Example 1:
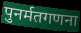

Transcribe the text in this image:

पुनर्मतगणना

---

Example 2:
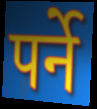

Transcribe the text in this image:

पर्ने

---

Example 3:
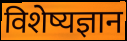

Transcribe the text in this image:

विशेष्यज्ञान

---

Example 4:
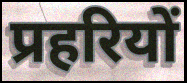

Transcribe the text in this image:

प्रहरियों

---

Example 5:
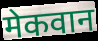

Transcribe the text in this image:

मेकवान